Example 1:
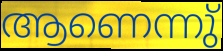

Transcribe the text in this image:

ആണെന്നു്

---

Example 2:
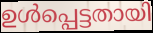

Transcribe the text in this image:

ഉൾപ്പെട്ടതായി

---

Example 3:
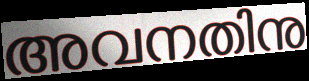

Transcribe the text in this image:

അവനതിനു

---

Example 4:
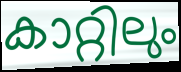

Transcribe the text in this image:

കാറ്റിലും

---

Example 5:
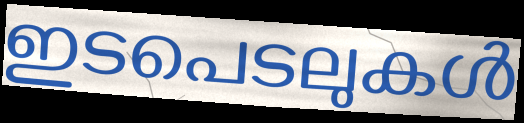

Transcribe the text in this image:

ഇടപെടലുകൾ